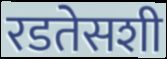
रडतेसशी